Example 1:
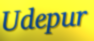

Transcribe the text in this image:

Udepur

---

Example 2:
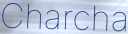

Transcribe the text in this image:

Charcha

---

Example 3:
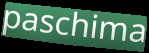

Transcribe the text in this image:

paschima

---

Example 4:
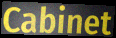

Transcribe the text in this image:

Cabinet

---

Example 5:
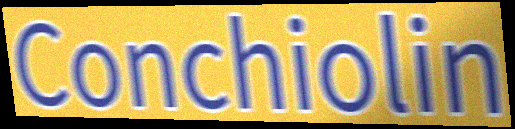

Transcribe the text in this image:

Conchiolin